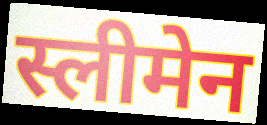
स्लीमेन